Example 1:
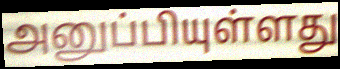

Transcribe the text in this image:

அனுப்பியுள்ளது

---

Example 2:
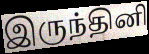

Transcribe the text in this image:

இருந்தினி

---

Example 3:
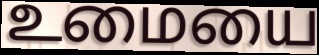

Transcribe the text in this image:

உமையை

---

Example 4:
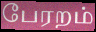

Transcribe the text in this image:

பேரறம்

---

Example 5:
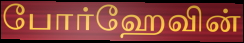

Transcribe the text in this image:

போர்ஹேவின்